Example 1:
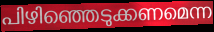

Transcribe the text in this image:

പിഴിഞ്ഞെടുക്കണമെന്ന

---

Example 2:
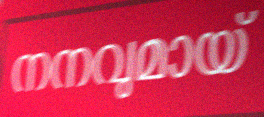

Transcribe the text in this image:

നനവുമായ്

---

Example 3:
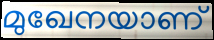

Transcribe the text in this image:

മുഖേനയാണ്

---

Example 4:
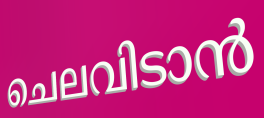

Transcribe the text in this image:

ചെലവിടാൻ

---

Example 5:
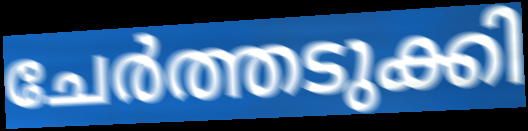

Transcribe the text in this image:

ചേർത്തടുക്കി